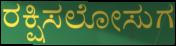
ರಕ್ಷಿಸಲೋಸುಗ